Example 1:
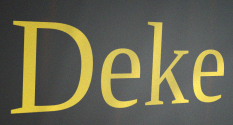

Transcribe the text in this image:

Deke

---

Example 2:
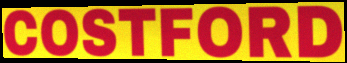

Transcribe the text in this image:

COSTFORD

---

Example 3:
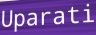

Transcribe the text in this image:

Uparati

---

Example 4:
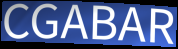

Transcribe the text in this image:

CGABAR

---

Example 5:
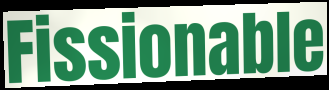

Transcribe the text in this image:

Fissionable